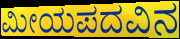
ಮೀಯಪದವಿನ